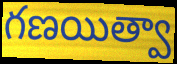
గణయిత్వా